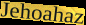
Jehoahaz